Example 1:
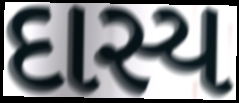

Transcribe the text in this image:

દાસ્ય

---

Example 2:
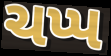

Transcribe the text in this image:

ચપ્પ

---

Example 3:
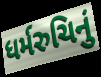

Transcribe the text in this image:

ધર્મરુચિનું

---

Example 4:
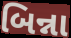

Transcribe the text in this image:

બિન્ના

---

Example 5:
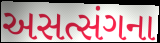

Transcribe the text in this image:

અસત્સંગના